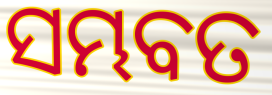
ସମ୍ଭବତ